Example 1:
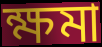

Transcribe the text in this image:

ক্ষমা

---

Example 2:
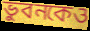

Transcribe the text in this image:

ভুবনকেও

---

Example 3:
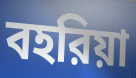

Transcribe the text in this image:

বহরিয়া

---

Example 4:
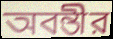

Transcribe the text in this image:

অবন্তীর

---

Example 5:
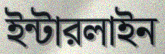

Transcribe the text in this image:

ইন্টারলাইন